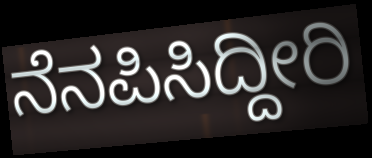
ನೆನಪಿಸಿದ್ದೀರಿ